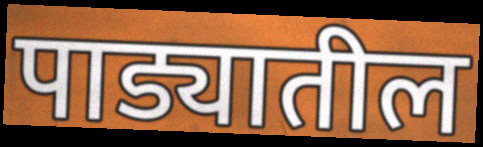
पाड्यातील